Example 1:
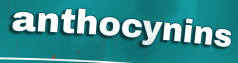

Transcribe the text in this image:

anthocynins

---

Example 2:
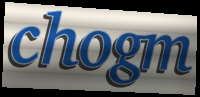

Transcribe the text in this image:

chogm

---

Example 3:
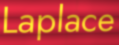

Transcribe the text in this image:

Laplace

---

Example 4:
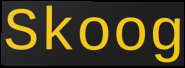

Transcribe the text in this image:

Skoog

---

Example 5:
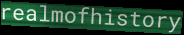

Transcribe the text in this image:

realmofhistory